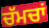
ਚੱਮਚਾਂ